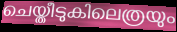
ചെയ്തീടുകിലെത്രയും